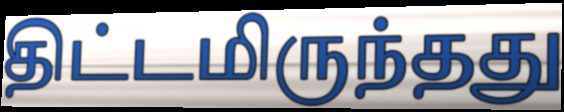
திட்டமிருந்தது